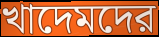
খাদেমদের